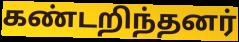
கண்டறிந்தனர்